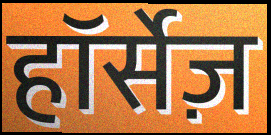
हॉर्सेज़